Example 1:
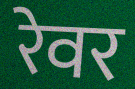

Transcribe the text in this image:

रेवर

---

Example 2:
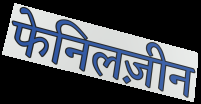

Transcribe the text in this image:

फेनिलज़ीन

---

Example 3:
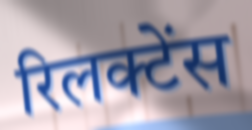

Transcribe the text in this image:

रिलक्टेंस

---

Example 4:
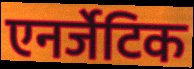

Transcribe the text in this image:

एनर्जेटिक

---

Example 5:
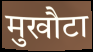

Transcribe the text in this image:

मुखौटा